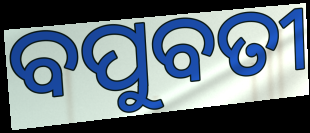
ବପୁବତୀ